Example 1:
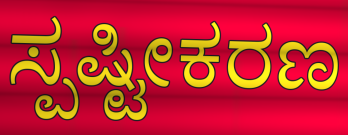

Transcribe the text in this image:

ಸ್ಪಷ್ಟೀಕರಣ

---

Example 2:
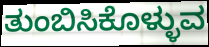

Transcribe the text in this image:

ತುಂಬಿಸಿಕೊಳ್ಳುವ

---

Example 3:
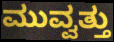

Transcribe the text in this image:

ಮುವ್ವತ್ತು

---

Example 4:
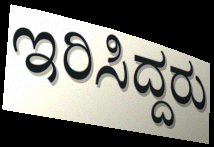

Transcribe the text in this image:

ಇರಿಸಿದ್ದರು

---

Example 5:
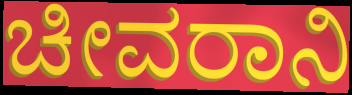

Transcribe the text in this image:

ಚೀವರಾನಿ